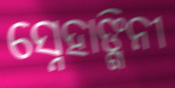
ସ୍ନେହାଙ୍ଗିନୀ